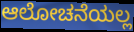
ಆಲೋಚನೆಯಲ್ಲ